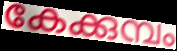
കേക്കുമ്പം